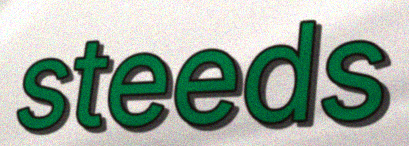
steeds